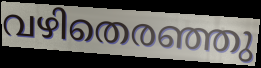
വഴിതെരഞ്ഞു